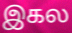
இகல